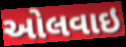
ઓલવાઇ